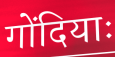
गोंदियाः